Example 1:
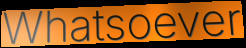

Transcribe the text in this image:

Whatsoever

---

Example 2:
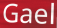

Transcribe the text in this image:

Gael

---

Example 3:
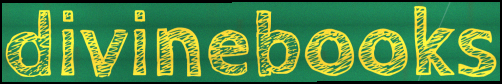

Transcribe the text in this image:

divinebooks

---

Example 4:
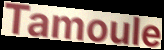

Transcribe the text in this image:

Tamoule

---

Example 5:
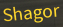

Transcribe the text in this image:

Shagor